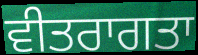
ਵੀਤਰਾਗਤਾ